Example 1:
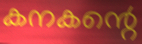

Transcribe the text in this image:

കനകന്റെ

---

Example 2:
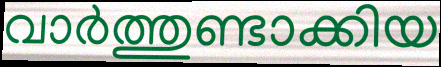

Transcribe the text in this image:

വാർത്തുണ്ടാക്കിയ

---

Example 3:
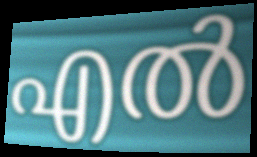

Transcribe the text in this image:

എൽ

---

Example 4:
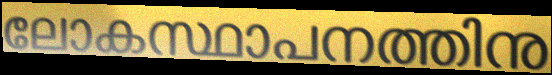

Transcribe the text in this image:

ലോകസ്ഥാപനത്തിനു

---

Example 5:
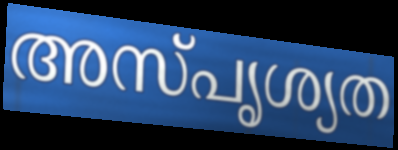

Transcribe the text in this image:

അസ്പൃശ്യത